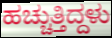
ಹಚ್ಚುತ್ತಿದ್ದಳು